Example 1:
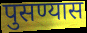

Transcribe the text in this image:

पुसण्यास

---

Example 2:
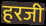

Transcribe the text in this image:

हरजी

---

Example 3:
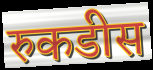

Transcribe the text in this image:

रुकडीस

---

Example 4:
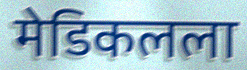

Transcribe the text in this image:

मेडिकलला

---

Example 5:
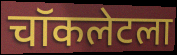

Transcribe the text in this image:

चॉकलेटला